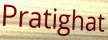
Pratighat